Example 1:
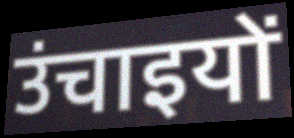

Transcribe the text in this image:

उंचाइयों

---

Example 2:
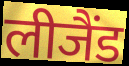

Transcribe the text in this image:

लीजैंड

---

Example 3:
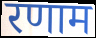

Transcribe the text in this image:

रणाम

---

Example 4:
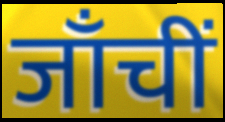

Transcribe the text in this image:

जाँचीं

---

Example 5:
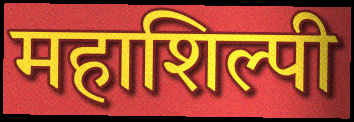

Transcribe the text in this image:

महाशिल्पी